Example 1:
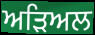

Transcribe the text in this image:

ਅੜਿਅਲ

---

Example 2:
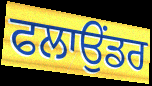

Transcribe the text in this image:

ਫਲਾਉਂਡਰ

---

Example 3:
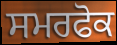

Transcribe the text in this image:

ਸਮਰਫੋਕ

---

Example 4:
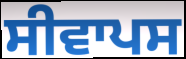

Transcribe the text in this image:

ਸੀਵਾਪਸ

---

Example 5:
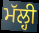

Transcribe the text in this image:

ਮੱਲ੍ਹੀ